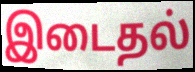
இடைதல்